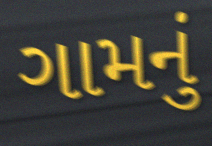
ગામનું